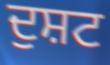
ਦੁਸ਼ਟ